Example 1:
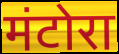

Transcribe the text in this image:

मंटोरा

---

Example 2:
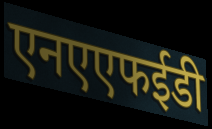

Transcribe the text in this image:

एनएएफईडी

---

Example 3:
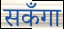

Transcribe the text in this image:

सकँगा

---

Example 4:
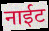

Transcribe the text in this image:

नाईट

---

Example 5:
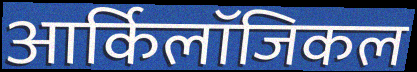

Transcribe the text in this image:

आर्किलॉजिकल